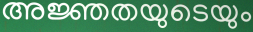
അജ്ഞതയുടെയും